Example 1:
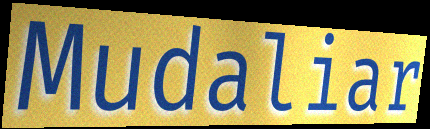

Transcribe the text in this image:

Mudaliar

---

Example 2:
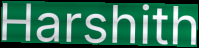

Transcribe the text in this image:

Harshith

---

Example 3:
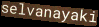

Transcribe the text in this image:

selvanayaki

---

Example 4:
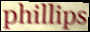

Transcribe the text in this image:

phillips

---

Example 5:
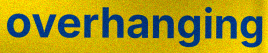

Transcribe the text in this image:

overhanging